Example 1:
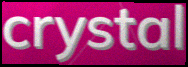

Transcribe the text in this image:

crystal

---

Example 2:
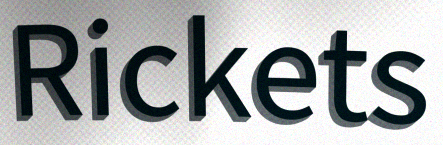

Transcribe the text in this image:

Rickets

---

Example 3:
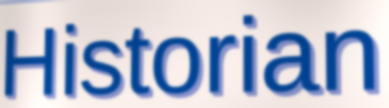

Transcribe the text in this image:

Historian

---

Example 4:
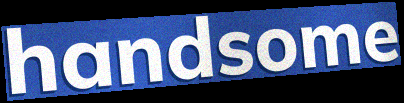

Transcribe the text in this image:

handsome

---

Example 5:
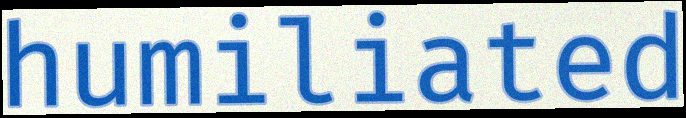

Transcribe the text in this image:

humiliated